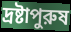
দ্রষ্টাপুরুষ